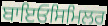
ਬਾਇਓਸਿਮਿਲਰ